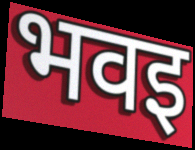
भवइ